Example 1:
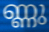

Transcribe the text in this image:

ണ്ണു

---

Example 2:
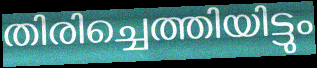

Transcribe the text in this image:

തിരിച്ചെത്തിയിട്ടും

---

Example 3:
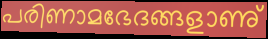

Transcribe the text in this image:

പരിണാമഭേദങ്ങളാണു്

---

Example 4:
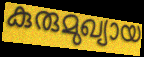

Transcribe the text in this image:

കുരുമുഖ്യായ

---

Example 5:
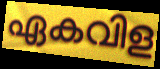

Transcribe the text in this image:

ഏകവിള